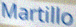
Martillo